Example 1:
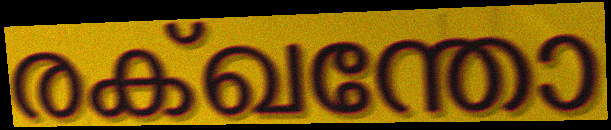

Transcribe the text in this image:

രക്ഖന്തോ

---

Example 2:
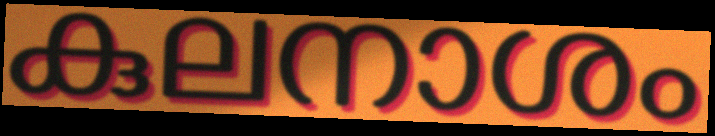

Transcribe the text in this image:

കുലനാശം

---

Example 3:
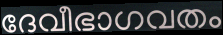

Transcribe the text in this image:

ദേവീഭാഗവതം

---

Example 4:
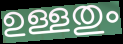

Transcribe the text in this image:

ഉള്ളതും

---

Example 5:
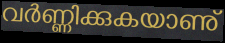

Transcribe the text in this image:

വർണ്ണിക്കുകയാണു്